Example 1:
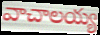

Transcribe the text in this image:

వాచాలయ్య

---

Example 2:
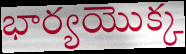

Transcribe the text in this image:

భార్యయొక్క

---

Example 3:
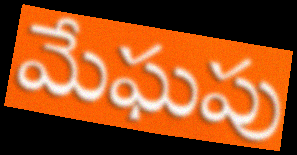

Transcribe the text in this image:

మేఘపు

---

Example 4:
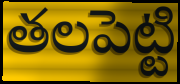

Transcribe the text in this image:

తలపెట్టి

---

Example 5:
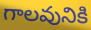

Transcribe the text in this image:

గాలవునికి